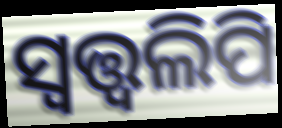
ସ୍ୱତ୍ତ୍ୱଲିପି